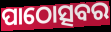
ପାଠୋତ୍ସବର